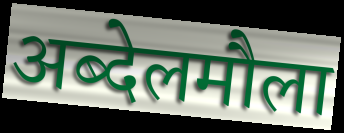
अब्देलमौला